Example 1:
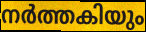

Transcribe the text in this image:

നർത്തകിയും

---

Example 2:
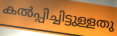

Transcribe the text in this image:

കൽപ്പിച്ചിട്ടുള്ളതു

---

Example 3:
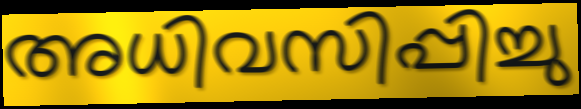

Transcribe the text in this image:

അധിവസിപ്പിച്ചു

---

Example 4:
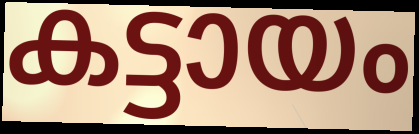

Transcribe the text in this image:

കട്ടായം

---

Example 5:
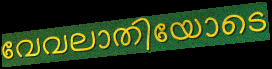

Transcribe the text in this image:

വേവലാതിയോടെ